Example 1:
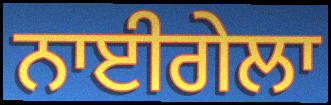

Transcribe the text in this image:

ਨਾਈਗੇਲਾ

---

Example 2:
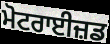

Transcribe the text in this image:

ਮੋਟਰਾਈਜ਼ਡ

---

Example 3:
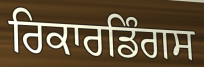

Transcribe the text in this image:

ਰਿਕਾਰਡਿੰਗਸ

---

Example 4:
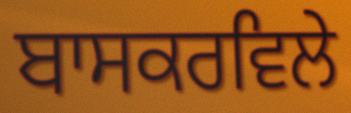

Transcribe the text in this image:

ਬਾਸਕਰਵਿਲੇ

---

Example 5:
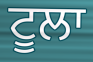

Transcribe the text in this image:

ਟੂਲਾ